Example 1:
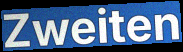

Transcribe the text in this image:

Zweiten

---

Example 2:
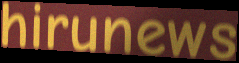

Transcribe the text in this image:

hirunews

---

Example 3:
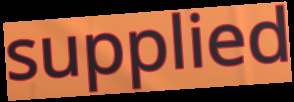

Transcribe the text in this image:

supplied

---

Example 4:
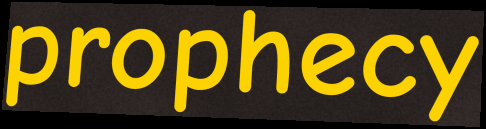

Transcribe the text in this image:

prophecy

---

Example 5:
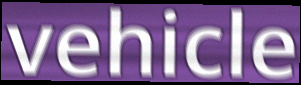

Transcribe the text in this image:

vehicle